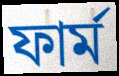
ফাৰ্ম